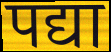
पद्या